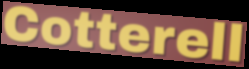
Cotterell